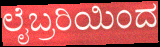
ಲೈಬ್ರರಿಯಿಂದ